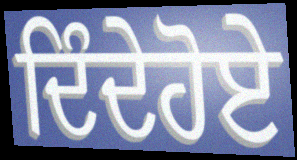
ਦਿੰਦੇਹੋਏ